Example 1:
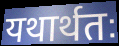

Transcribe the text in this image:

यथार्थतः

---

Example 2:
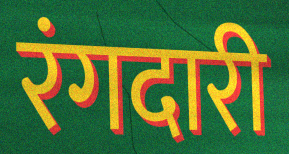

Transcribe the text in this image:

रंगदारी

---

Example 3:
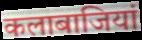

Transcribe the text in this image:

कलाबाजियां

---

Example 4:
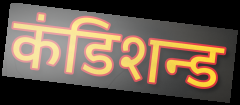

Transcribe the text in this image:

कंडिशन्ड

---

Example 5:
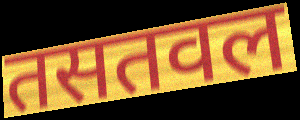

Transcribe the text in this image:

तसतवल